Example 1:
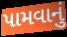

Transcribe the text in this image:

પામવાનું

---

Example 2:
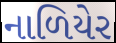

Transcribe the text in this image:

નાળિયેર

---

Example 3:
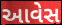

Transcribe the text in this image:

આવેસ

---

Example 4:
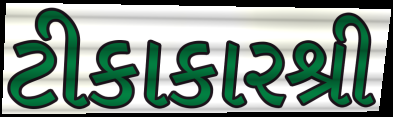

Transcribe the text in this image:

ટીકાકારશ્રી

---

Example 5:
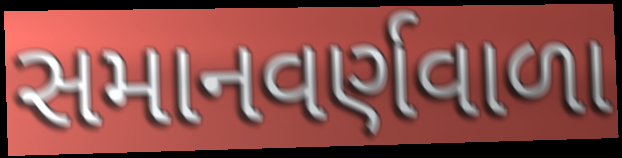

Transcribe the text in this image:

સમાનવર્ણવાળા